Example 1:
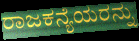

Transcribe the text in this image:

ರಾಜಕನ್ಯೆಯರನ್ನು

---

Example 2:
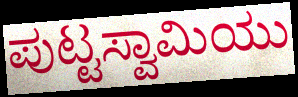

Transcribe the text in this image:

ಪುಟ್ಟಸ್ವಾಮಿಯು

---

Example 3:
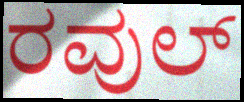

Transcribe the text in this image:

ರವುಲ್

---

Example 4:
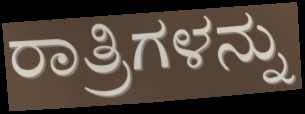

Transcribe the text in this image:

ರಾತ್ರಿಗಳನ್ನು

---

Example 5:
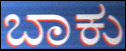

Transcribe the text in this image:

ಬಾಕು